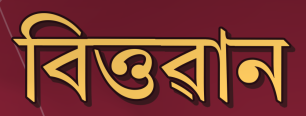
বিত্তৱান